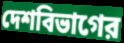
দেশবিভাগের